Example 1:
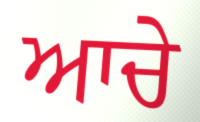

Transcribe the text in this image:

ਆਚੇ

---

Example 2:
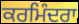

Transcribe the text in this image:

ਕਰਮਿੰਦਰਾ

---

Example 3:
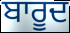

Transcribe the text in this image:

ਬਾਰੂਦ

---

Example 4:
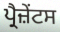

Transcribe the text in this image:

ਪ੍ਰੈਜ਼ੇਂਟਸ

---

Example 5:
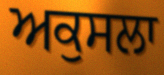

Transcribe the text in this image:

ਅਕੁਸਲਾ